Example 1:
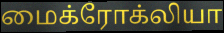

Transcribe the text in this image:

மைக்ரோக்லியா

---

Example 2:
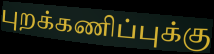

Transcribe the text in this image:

புறக்கணிப்புக்கு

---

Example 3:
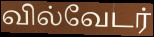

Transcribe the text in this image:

வில்வேடர்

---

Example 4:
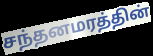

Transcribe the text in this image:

சந்தனமரத்தின்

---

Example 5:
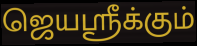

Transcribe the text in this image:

ஜெயஸ்ரீக்கும்